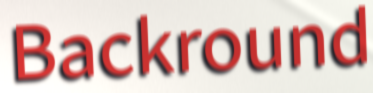
Backround